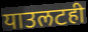
याउलटही